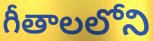
గీతాలలోని